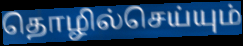
தொழில்செய்யும்